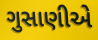
ગુસાણીએ